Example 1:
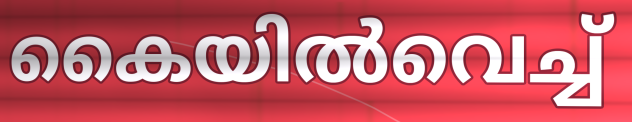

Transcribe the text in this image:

കൈയിൽവെച്ച്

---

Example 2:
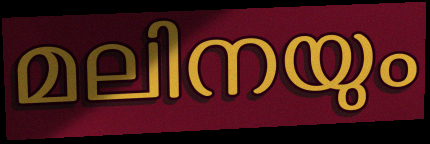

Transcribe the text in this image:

മലിനയും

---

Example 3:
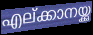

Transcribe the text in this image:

എല്ക്കാനയ്ക്കു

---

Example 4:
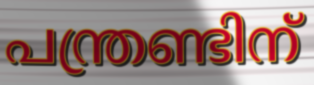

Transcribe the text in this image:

പന്ത്രണ്ടിന്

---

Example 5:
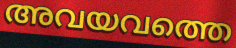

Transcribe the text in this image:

അവയവത്തെ